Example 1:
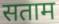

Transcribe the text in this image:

सताम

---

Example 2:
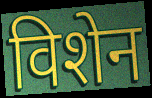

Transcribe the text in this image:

विशेन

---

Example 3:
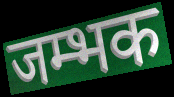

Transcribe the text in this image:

जम्भक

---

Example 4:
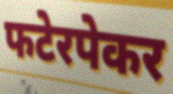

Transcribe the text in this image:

फटेरपेकर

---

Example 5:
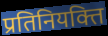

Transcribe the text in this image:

प्रतिनियक्ति